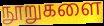
நூறுகளை